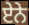
ਏੇਨੇ